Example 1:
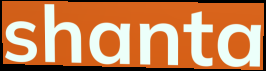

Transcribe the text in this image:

shanta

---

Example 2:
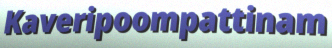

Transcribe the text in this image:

Kaveripoompattinam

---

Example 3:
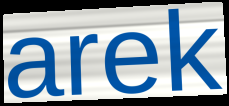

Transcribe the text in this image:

arek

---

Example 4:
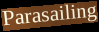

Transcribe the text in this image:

Parasailing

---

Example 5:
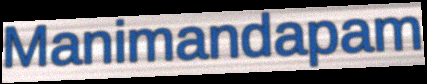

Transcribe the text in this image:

Manimandapam